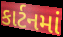
કાર્ટનમાં